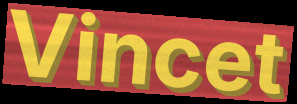
Vincet